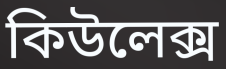
কিউলেক্স